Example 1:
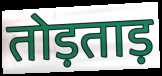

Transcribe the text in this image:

तोड़ताड़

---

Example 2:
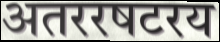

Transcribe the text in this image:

अतररषटरय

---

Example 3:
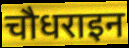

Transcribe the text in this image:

चौधराइन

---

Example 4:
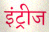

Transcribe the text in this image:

इंट्रीज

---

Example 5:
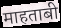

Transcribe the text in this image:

माहताबी